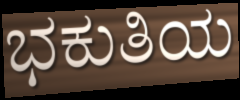
ಭಕುತಿಯ